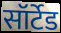
सॉर्टेड